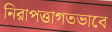
নিরাপত্তাগতভাবে